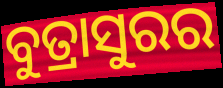
ବୁତ୍ରାସୁରର